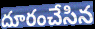
దూరంచేసిన